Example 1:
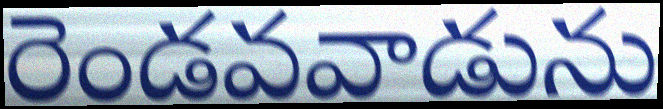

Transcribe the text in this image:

రెండవవాడును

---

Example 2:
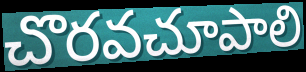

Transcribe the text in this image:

చొరవచూపాలి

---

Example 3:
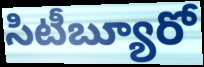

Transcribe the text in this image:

సిటీబ్యూరో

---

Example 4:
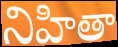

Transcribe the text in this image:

నిహితా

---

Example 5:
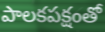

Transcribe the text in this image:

పాలకపక్షంతో